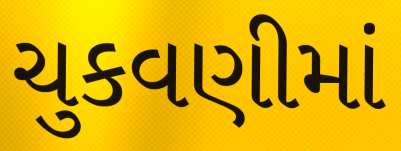
ચુકવણીમાં